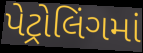
પેટ્રોલિંગમાં